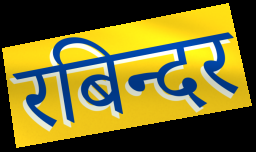
रबिन्दर